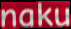
naku